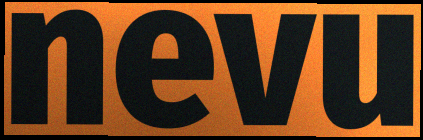
nevu